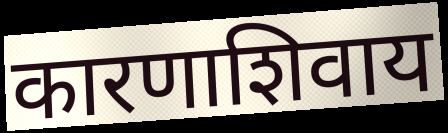
कारणाशिवाय